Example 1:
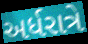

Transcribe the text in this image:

અર્ધરાત્રે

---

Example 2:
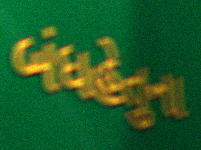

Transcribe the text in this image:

બંધહેતુના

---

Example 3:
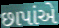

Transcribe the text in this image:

છાપાંએ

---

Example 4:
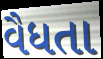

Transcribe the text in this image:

વૈધતા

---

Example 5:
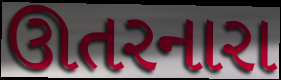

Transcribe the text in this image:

ઊતરનારા